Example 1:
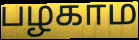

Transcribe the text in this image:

பழகாம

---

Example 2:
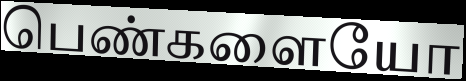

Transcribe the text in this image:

பெண்களையோ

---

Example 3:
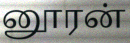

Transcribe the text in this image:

னூரன்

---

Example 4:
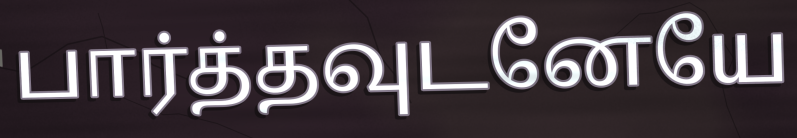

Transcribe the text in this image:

பார்த்தவுடனேயே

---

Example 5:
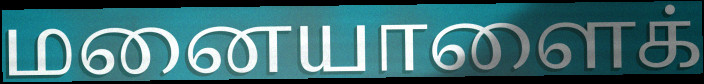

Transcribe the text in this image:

மனையாளைக்